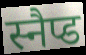
स्नैप्ड